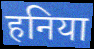
हनिया